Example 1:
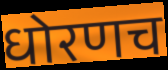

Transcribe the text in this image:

धोरणच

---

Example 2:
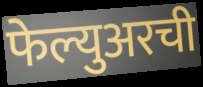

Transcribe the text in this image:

फेल्युअरची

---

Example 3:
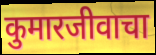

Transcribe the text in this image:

कुमारजीवाचा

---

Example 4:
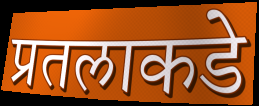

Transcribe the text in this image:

प्रतलाकडे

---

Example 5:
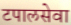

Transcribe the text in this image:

टपालसेवा